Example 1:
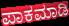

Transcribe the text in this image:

ಪಾಕಮಾಡಿ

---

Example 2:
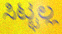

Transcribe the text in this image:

ಸಿಟ್ಟಲ್ಲ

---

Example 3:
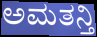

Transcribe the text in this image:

ಅಮತನ್ತಿ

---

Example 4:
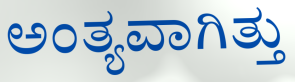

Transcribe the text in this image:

ಅಂತ್ಯವಾಗಿತ್ತು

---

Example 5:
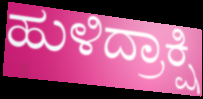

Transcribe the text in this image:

ಹುಳಿದ್ರಾಕ್ಷಿ